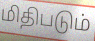
மிதிபடும்